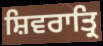
ਸ਼ਿਵਰਾਤ੍ਰਿ